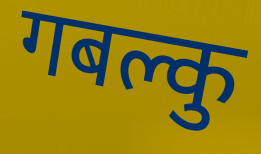
गबल्कु